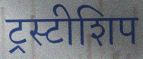
ट्रस्टीशिप